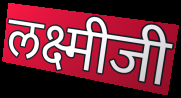
लक्ष्मीजी